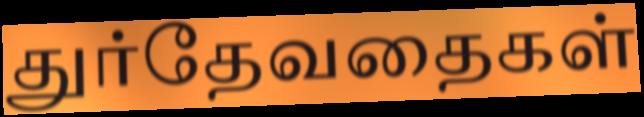
துர்தேவதைகள்